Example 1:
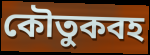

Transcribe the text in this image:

কৌতুকবহ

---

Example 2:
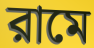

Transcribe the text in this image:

রামে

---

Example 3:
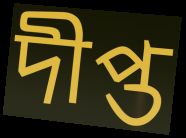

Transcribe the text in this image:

দীপ্ত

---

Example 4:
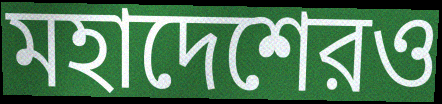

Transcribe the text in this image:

মহাদেশেরও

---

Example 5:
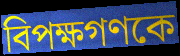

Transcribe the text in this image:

বিপক্ষগণকে